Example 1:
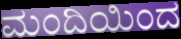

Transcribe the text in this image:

ಮಂದಿಯಿಂದ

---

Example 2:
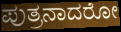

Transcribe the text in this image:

ಪುತ್ರನಾದರೋ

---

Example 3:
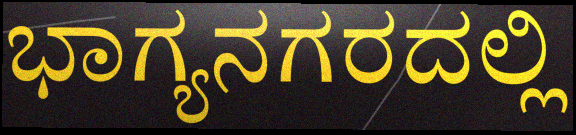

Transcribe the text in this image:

ಭಾಗ್ಯನಗರದಲ್ಲಿ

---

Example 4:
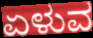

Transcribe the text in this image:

ಏಳುವ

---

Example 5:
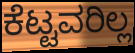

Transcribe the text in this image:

ಕೆಟ್ಟವರಿಲ್ಲ